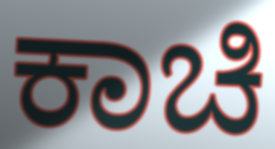
ಕಾಚಿ